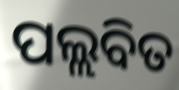
ପଲ୍ଲବିତ